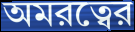
অমরত্বের